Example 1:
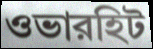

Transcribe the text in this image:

ওভারহিট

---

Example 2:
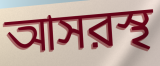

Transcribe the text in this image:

আসরস্থ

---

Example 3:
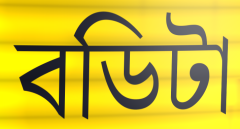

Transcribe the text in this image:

বডিটা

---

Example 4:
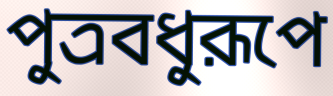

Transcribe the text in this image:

পুত্রবধুরূপে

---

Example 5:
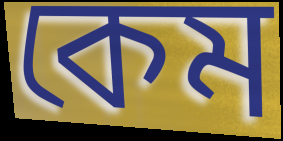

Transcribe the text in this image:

কেম